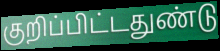
குறிப்பிட்டதுண்டு